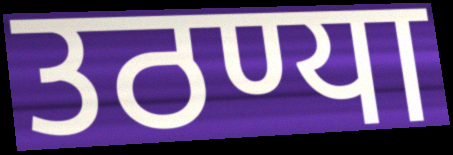
उठण्या